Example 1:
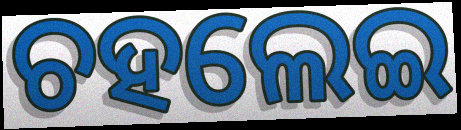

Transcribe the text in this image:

ଚହଲେଇ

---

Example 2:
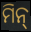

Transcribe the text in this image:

ମିନ୍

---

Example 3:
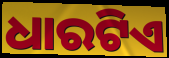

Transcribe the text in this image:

ଧାରଟିଏ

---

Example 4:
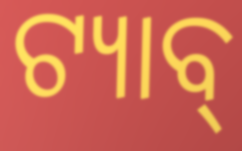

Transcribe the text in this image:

ଟ୍ୟାବ୍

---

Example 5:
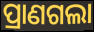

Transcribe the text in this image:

ପ୍ରାଣଗଲା